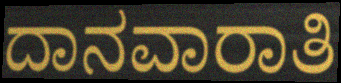
ದಾನವಾರಾತಿ